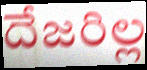
దేజరిల్ల